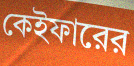
কেইফারের